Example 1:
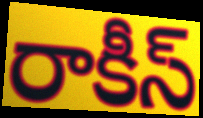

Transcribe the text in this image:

రాకీస్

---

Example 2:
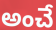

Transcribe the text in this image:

అంచే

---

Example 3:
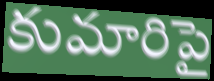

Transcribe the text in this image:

కుమారిపై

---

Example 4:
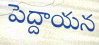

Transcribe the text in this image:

పెద్దాయన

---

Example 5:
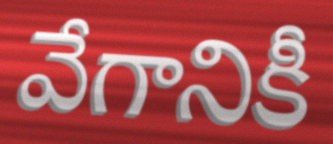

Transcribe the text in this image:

వేగానికీ